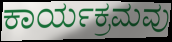
ಕಾರ್ಯಕ್ರಮವು